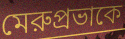
মেরুপ্রভাকে